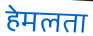
हेमलता